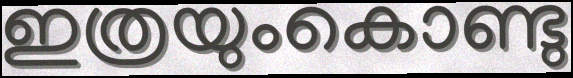
ഇത്രയുംകൊണ്ടു